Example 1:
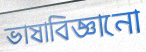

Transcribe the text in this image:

ভাষাবিজ্ঞানো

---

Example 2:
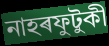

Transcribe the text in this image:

নাহৰফুটুকী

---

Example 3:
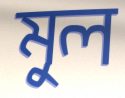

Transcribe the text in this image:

মুল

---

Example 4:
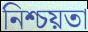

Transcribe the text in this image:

নিশ্চয়তা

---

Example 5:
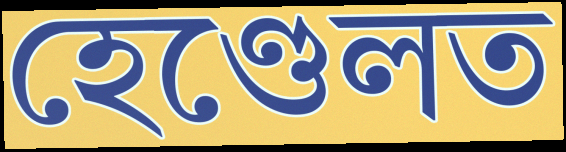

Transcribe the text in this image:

হেণ্ডেলত